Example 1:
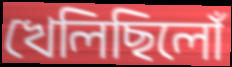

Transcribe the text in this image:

খেলিছিলোঁ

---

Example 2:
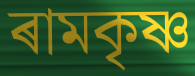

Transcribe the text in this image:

ৰামকৃষ্ণ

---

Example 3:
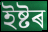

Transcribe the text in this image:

ইষ্টৰ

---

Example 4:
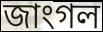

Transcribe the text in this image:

জাংগল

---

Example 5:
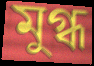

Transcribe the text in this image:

মুগ্ধ